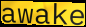
awake